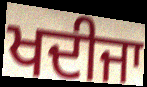
ਖਦੀਜਾ